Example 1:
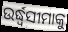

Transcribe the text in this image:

ଉର୍ଦ୍ଧ୍ୱସୀମାକୁ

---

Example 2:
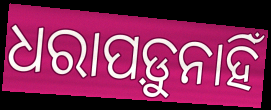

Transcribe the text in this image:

ଧରାପଡ଼ୁନାହିଁ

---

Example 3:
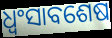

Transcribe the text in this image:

ଧ୍ଵଂସାବଶେଷ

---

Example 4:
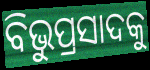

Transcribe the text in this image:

ବିଭୁପ୍ରସାଦକୁ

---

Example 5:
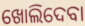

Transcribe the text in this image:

ଖୋଲିଦେବା